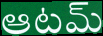
ఆటమ్